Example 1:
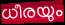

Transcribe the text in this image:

ധീരയും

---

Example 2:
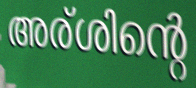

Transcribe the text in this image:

അര്ശിന്റെ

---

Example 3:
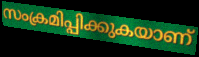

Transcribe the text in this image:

സംക്രമിപ്പിക്കുകയാണ്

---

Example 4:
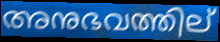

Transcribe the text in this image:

അനുഭവത്തില്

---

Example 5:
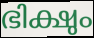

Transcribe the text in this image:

ഭിക്ഷും